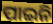
ପାଇନି